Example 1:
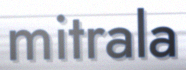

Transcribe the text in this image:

mitrala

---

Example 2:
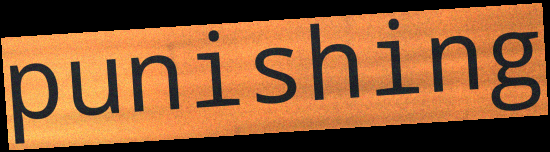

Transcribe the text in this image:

punishing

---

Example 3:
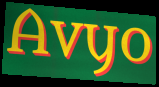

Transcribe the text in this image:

Avyo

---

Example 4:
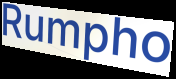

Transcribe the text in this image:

Rumpho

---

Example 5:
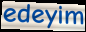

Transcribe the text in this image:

edeyim